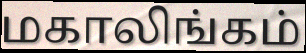
மகாலிங்கம்